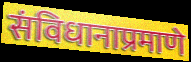
संविधानाप्रमाणे